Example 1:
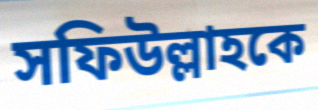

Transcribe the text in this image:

সফিউল্লাহকে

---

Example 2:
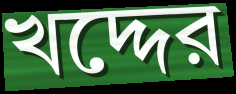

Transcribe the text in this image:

খদ্দের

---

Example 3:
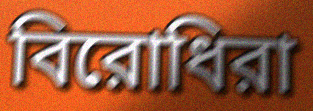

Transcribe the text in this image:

বিরোধিরা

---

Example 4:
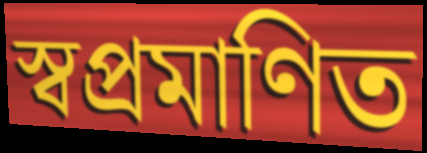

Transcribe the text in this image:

স্বপ্রমাণিত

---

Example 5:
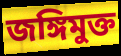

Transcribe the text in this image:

জঙ্গিমুক্ত